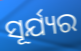
ସୂର୍ଯ୍ୟର